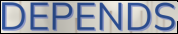
DEPENDS